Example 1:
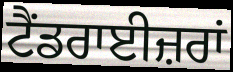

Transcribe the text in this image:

ਟੈਂਡਰਾਈਜ਼ਰਾਂ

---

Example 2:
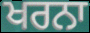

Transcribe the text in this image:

ਖਰਨਾ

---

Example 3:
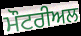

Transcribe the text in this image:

ਮੌਟਰੀਅਲ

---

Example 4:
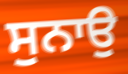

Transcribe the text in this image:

ਸੁਨਾਉ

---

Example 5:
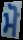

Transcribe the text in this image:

ਮੋ